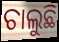
ଚାଲୁଛି